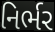
નિર્ભર